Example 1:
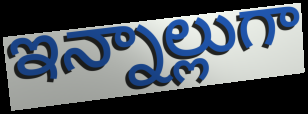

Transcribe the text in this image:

ఇన్నాల్లుగా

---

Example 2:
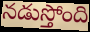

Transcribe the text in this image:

నడుస్తోంది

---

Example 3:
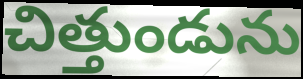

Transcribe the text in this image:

చిత్తుండును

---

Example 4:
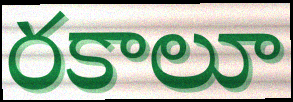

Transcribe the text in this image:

రకాలూ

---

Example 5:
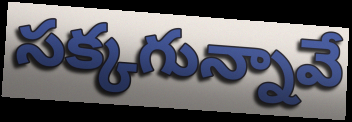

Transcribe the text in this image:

సక్కగున్నావే